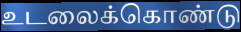
உடலைக்கொண்டு